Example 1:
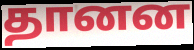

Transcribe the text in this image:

தானன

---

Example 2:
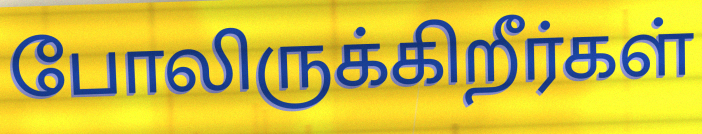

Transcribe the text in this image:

போலிருக்கிறீர்கள்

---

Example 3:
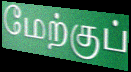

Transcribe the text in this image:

மேற்குப்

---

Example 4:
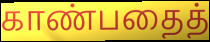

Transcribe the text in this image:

காண்பதைத்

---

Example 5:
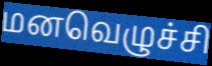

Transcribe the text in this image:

மனவெழுச்சி